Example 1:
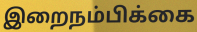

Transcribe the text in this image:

இறைநம்பிக்கை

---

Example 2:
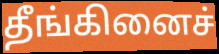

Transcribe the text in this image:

தீங்கினைச்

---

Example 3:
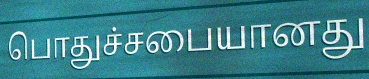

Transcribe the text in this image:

பொதுச்சபையானது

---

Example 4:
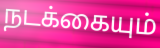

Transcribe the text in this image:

நடக்கையும்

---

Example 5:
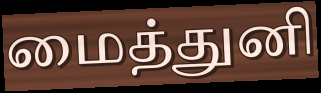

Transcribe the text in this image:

மைத்துனி